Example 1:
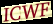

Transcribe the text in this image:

ICWF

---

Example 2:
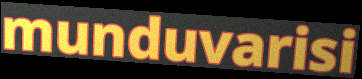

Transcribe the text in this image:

munduvarisi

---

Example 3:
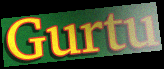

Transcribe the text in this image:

Gurtu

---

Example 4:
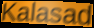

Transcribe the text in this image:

Kalasad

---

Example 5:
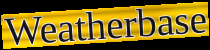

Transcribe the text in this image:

Weatherbase